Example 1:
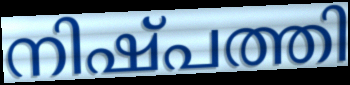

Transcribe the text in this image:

നിഷ്പത്തി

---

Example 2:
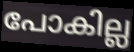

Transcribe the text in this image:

പോകില്ല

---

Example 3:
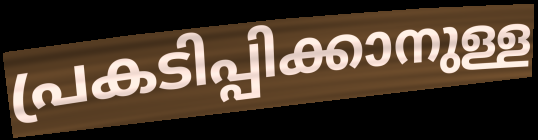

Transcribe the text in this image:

പ്രകടിപ്പിക്കാനുള്ള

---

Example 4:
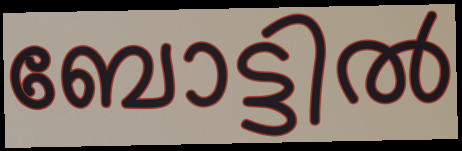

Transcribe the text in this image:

ബോട്ടിൽ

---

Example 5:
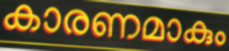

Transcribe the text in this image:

കാരണമാകും